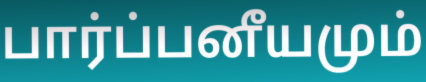
பார்ப்பனீயமும்